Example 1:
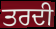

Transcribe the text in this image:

ਤਰਦੀ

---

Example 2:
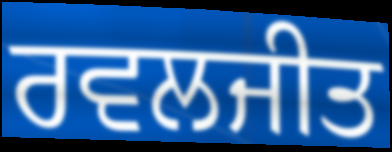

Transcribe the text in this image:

ਰਵਲਜੀਤ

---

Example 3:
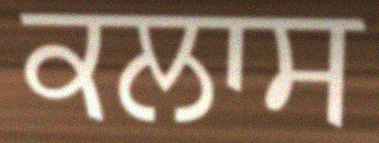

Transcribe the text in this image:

ਕਲਾਸ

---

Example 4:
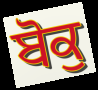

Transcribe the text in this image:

ਬੋਕੁ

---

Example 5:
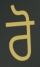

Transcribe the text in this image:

ਰੋ